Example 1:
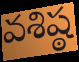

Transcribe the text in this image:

వశిష్ఠ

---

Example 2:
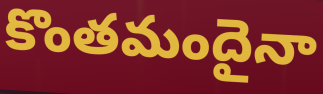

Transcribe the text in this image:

కొంతమందైనా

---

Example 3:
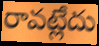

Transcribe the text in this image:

రావట్లేదు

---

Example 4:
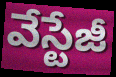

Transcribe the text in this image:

వేస్టేజీ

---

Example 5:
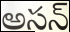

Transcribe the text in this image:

అసన్